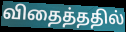
விதைத்ததில்